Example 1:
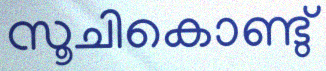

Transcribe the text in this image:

സൂചികൊണ്ടു്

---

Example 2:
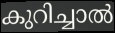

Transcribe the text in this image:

കുറിച്ചാൽ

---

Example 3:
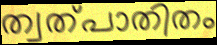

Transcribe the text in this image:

ത്വത്പാതിതം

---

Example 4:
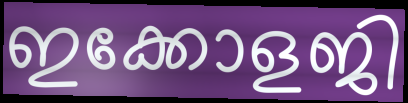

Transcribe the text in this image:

ഇക്കോളജി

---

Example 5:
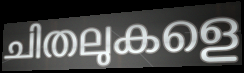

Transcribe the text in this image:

ചിതലുകളെ